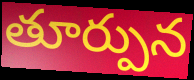
తూర్పున